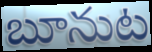
బూనుట